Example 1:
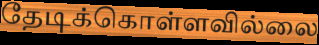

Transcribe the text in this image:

தேடிக்கொள்ளவில்லை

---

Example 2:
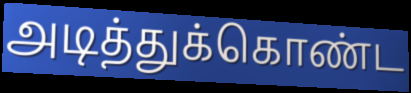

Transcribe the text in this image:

அடித்துக்கொண்ட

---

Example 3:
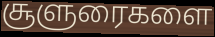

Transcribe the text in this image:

சூளுரைகளை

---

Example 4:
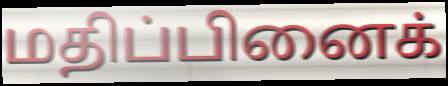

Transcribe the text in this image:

மதிப்பினைக்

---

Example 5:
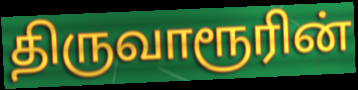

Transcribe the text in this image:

திருவாரூரின்